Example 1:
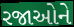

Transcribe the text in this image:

રજાઓને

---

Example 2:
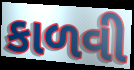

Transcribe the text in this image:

કાળવી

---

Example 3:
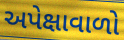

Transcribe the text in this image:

અપેક્ષાવાળો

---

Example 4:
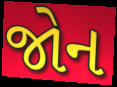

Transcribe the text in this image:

જોન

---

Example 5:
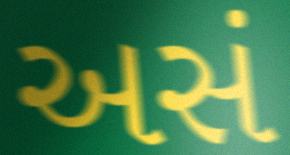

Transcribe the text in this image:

અસં